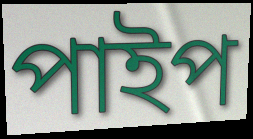
পাইপ